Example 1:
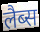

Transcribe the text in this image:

लैब्स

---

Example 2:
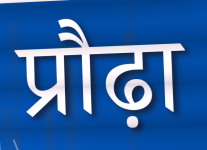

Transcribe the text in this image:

प्रौढ़ा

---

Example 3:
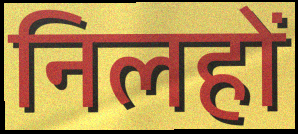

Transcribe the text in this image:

निलहों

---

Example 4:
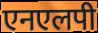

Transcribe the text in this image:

एनएलपी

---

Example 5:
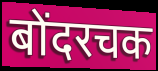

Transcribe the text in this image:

बोंदरचक